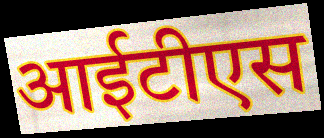
आईटीएस